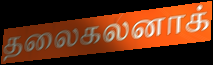
தலைகலனாக்